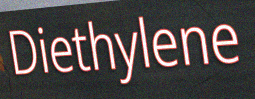
Diethylene